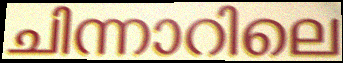
ചിന്നാറിലെ